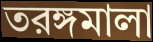
তরঙ্গমালা